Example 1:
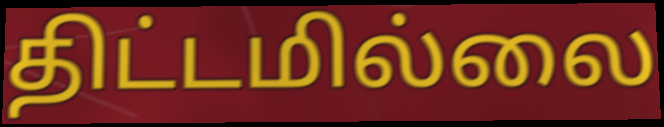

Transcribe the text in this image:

திட்டமில்லை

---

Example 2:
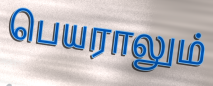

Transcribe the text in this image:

பெயராலும்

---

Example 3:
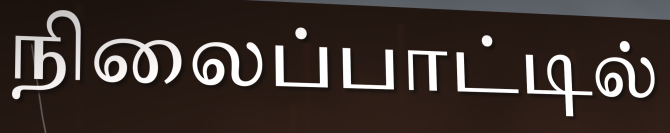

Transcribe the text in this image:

நிலைப்பாட்டில்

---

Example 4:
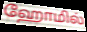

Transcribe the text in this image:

ஹோமில்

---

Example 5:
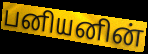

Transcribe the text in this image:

பனியனின்